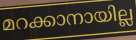
മറക്കാനായില്ല